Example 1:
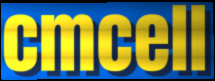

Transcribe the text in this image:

cmcell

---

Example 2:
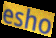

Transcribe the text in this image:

esho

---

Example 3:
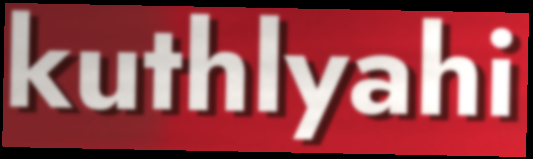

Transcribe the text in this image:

kuthlyahi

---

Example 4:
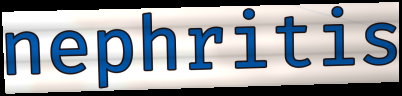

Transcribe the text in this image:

nephritis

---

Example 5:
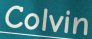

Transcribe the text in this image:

Colvin